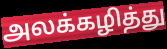
அலக்கழித்து